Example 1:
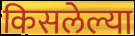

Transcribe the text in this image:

किसलेल्या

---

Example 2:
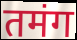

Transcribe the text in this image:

तमंग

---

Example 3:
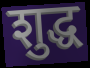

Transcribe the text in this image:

शुद्ध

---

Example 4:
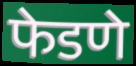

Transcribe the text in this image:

फेडणे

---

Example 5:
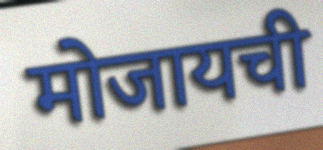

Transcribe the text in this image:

मोजायची